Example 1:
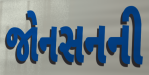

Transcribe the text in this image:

જોનસનની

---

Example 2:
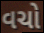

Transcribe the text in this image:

વચો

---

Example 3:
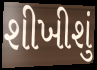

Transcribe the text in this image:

શીખીશું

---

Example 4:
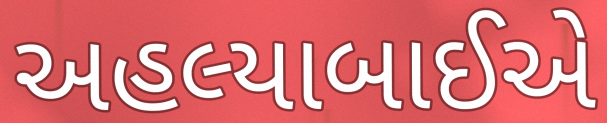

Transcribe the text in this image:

અહલ્યાબાઈએ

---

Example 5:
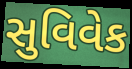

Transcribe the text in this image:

સુવિવેક